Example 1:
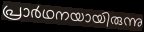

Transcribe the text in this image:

പ്രാർഥനയായിരുന്നു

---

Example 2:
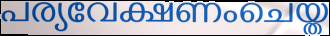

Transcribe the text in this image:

പര്യവേക്ഷണംചെയ്ത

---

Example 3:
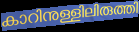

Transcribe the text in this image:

കാറിനുള്ളിലിരുത്തി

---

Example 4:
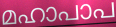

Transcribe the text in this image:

മഹാപാപ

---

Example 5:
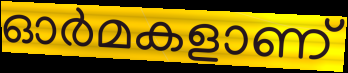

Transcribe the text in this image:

ഓർമകളാണ്